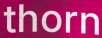
thorn